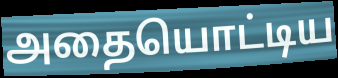
அதையொட்டிய